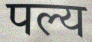
पल्य